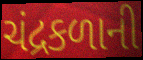
ચંદ્રકળાની